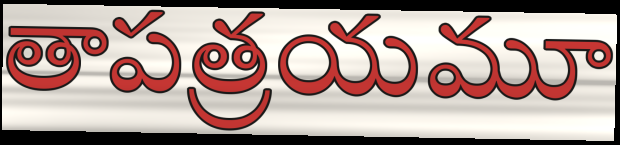
తాపత్రయమూ